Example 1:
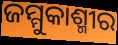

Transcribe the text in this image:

ଜମ୍ମୁକାଶ୍ମୀର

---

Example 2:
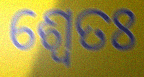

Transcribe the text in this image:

ଶ୍ଵେତଃ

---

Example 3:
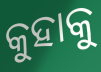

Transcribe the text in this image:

କୁହାକୁ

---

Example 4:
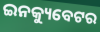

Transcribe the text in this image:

ଇନକ୍ୟୁବେଟର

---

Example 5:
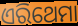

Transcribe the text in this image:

ଏରିଥେମା